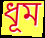
ধূম